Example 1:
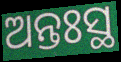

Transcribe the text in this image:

ଅନ୍ତଃସ୍ଥ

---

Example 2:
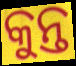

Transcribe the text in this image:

କୁନ୍ତ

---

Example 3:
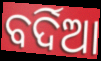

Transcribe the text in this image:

ବର୍ଦିଆ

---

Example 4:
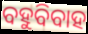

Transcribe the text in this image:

ବହୁବିବାହ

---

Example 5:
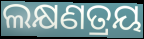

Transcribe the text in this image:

ଲକ୍ଷଣତ୍ରୟ